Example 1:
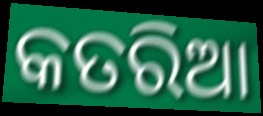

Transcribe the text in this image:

କତରିଆ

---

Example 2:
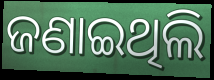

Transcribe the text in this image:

ଜଣାଇଥିଲି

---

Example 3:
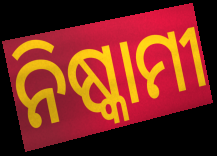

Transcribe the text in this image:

ନିଷ୍କାମୀ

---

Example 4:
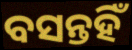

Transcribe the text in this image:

ବସନ୍ତହିଁ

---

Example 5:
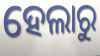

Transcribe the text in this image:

ହେଲାରୁ